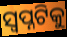
ସ୍ୱପ୍ନଟିକୁ